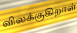
விலக்குகிறாள்